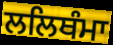
ਲਲਿਥੰਮਾ